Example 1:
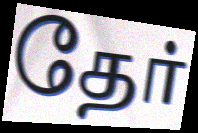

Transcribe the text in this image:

தேர்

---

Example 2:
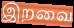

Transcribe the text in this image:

இறவை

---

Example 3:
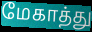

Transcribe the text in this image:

மேகாத்து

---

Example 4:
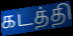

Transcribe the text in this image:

கடத்தி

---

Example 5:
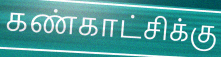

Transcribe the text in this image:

கண்காட்சிக்கு